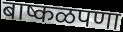
बाष्कळपणा